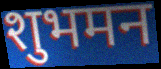
शुभमन